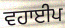
ਵਹਾਈਪ